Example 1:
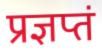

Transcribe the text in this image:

प्रज्ञप्तं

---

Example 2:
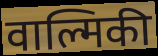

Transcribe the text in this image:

वाल्मिकी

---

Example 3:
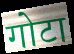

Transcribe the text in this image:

गोटा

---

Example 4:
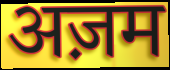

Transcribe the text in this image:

अज़म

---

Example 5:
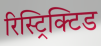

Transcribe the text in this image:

रिस्ट्रिक्टिड